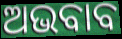
ଅଭବାବ